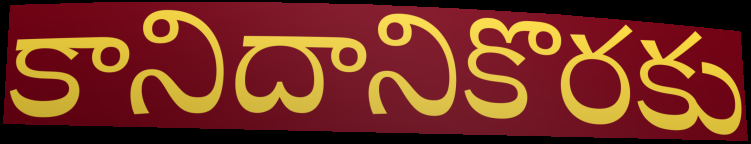
కానిదానికొరకు